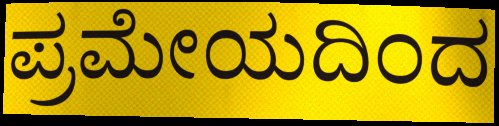
ಪ್ರಮೇಯದಿಂದ